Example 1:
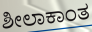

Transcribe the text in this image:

ಶೀಲಾಕಾಂತ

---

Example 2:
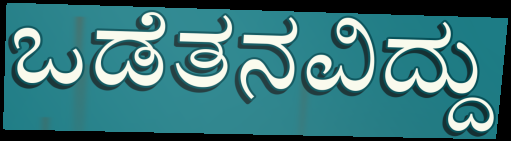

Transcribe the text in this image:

ಒಡೆತನವಿದ್ದು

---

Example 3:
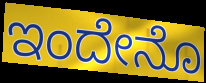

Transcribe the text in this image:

ಇಂದೇನೊ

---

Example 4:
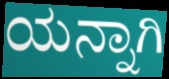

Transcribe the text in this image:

ಯನ್ನಾಗಿ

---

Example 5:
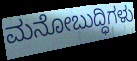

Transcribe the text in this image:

ಮನೋಬುದ್ಧಿಗಳು